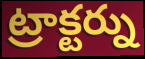
ట్రాక్టర్ను